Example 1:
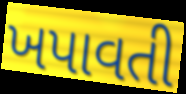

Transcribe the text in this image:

ખપાવતી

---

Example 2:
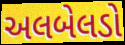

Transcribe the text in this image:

અલબેલડો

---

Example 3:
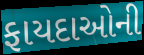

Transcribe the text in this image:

ફાયદાઓની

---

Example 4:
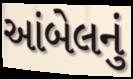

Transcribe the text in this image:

આંબેલનું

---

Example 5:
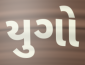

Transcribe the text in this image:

યુગો